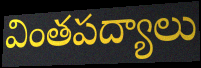
వింతపద్యాలు